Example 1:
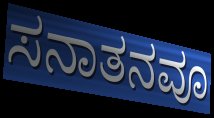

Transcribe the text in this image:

ಸನಾತನವೂ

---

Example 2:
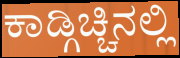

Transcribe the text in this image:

ಕಾಡ್ಗಿಚ್ಚಿನಲ್ಲಿ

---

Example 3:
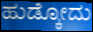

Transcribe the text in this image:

ಹುಡ್ಕೋದು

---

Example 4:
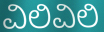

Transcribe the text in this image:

ವಿಲಿವಿಲಿ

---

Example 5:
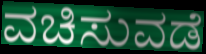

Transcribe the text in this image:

ವಚಿಸುವಡೆ